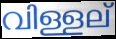
വിള്ളല്